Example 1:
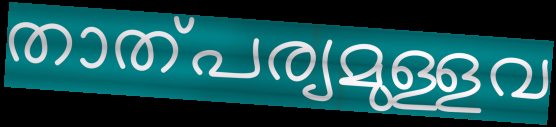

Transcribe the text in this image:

താത്പര്യമുള്ളവ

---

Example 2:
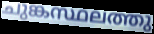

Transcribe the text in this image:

ചുങ്കസ്ഥലത്തു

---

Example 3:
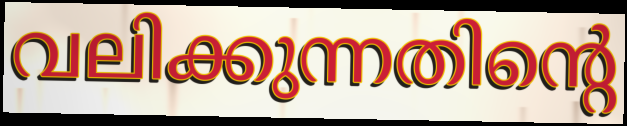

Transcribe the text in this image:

വലിക്കുന്നതിന്റെ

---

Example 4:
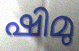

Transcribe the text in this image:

ഷിമു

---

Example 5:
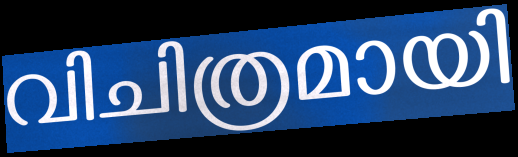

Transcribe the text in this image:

വിചിത്രമായി